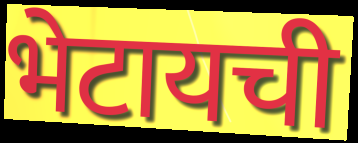
भेटायची